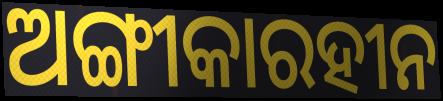
ଅଙ୍ଗୀକାରହୀନ